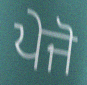
ਪੇਜੋ